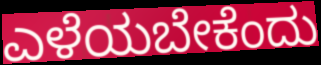
ಎಳೆಯಬೇಕೆಂದು